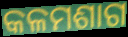
କଳମଶାଗ